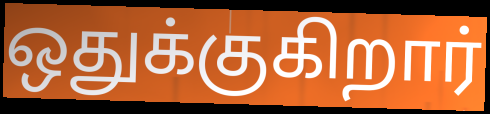
ஒதுக்குகிறார்